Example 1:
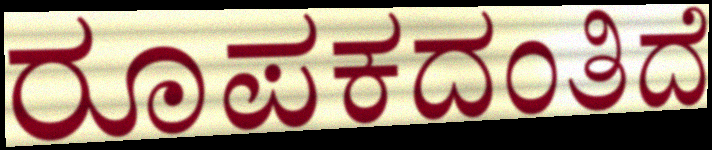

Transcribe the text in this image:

ರೂಪಕದಂತಿದೆ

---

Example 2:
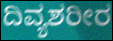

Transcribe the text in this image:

ದಿವ್ಯಶರೀರ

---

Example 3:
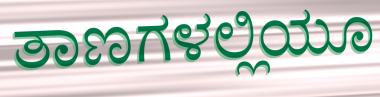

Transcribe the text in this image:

ತಾಣಗಳಲ್ಲಿಯೂ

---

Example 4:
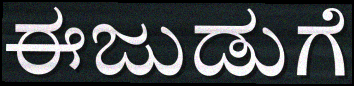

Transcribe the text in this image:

ಈಜುಡುಗೆ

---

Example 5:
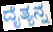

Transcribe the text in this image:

ದೈತ್ಯನ್ನ